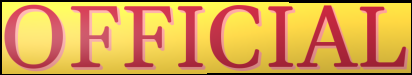
OFFICIAL